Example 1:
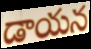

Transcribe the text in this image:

డాయన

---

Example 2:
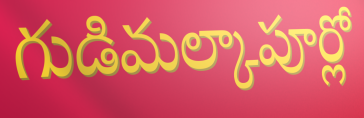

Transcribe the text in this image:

గుడిమల్కాపూర్లో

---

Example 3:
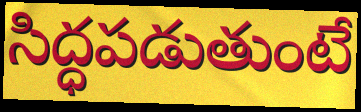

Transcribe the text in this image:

సిద్ధపడుతుంటే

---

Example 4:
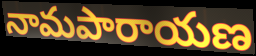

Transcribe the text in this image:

నామపారాయణ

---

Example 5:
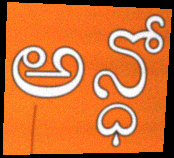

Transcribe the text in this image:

అన్ధో